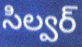
సిల్వర్